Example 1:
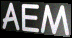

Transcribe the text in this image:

AEM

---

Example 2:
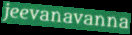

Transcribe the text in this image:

jeevanavanna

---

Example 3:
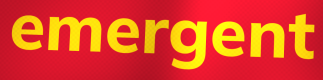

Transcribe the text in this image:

emergent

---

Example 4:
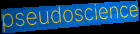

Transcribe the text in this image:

pseudoscience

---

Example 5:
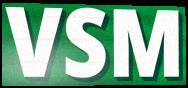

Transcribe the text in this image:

VSM